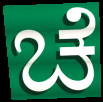
ಚೆ